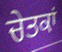
ਚੇਤਕਾਂ